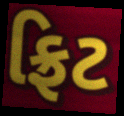
ફ્રિટ